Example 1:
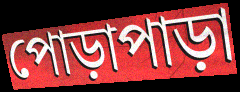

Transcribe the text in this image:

পোড়াপাড়া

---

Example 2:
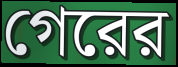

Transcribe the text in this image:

গেরের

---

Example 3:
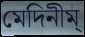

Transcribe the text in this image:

মেদিনীম্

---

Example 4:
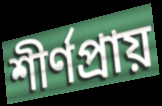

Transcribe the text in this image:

শীর্ণপ্রায়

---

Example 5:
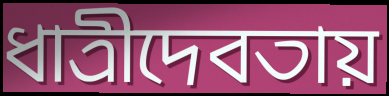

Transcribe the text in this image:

ধাত্রীদেবতায়